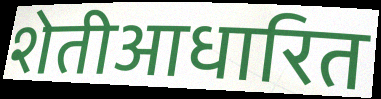
शेतीआधारित